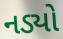
નડ્યો